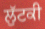
ਲੁੱਟਕੀ